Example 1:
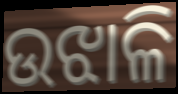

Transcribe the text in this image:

ଉଝାଳି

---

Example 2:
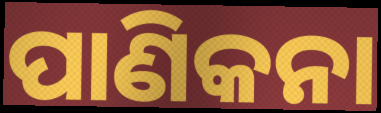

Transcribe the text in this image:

ପାଣିକନା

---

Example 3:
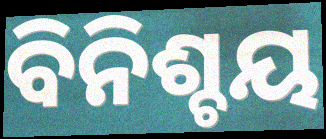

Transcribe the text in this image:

ବିନିଶ୍ଚୟ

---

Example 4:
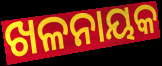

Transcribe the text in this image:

ଖଳନାୟକ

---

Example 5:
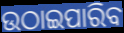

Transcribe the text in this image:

ଉଠାଇପାରିବ